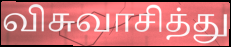
விசுவாசித்து